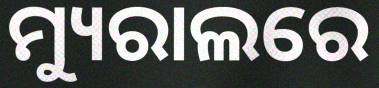
ମ୍ୟୁରାଲରେ